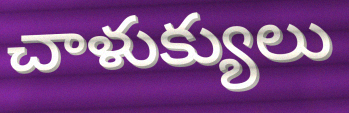
చాళుక్యులు